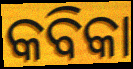
କବିକା